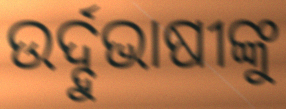
ଉର୍ଦ୍ଦୁଭାଷୀଙ୍କୁ